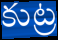
కుట్ర